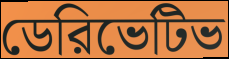
ডেরিভেটিভ